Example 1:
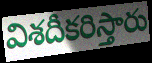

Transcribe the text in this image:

విశదీకరిస్తారు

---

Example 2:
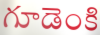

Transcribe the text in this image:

గూడెంకి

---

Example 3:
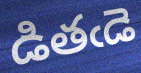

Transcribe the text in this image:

డితఁడె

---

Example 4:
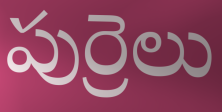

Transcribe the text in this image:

పుర్రెలు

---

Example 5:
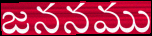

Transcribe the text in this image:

జననము